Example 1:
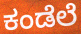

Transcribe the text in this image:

ಕಂಡೆಲೆ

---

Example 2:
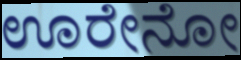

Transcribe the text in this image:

ಊರೇನೋ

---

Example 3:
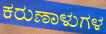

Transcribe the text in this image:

ಕರುಣಾಳುಗಳ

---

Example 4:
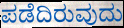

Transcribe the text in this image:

ಪಡೆದಿರುವುದು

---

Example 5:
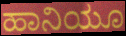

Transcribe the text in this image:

ಹಾನಿಯೂ